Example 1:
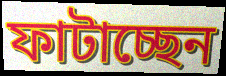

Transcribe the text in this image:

ফাটাচ্ছেন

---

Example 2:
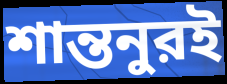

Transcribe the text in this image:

শান্তনুরই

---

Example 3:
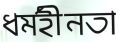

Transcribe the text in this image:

ধর্মহীনতা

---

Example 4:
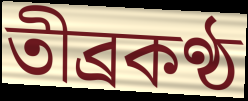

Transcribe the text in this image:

তীব্রকণ্ঠ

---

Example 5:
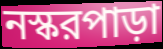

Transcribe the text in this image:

নস্করপাড়া